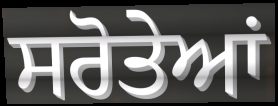
ਸਰੋਤੇਆਂ